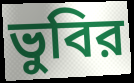
ভুবির